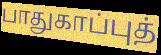
பாதுகாப்புத்